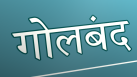
गोलबंद